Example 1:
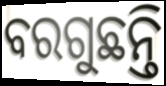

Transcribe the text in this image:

ବରଗୁଛନ୍ତି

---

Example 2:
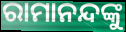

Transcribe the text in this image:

ରାମାନନ୍ଦଙ୍କୁ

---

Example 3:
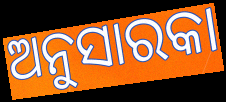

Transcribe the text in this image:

ଅନୁସାରକା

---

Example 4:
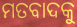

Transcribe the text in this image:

ମତବାଦକୁ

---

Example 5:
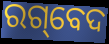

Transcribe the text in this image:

ରଗ୍‌ବେଦ